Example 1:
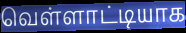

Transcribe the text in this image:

வெள்ளாட்டியாக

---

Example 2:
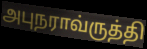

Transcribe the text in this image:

அபுநராவ்ருத்தி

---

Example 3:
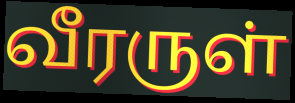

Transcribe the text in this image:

வீரருள்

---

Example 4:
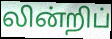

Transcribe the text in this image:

லின்றிப்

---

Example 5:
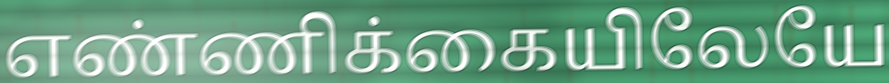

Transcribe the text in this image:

எண்ணிக்கையிலேயே